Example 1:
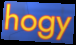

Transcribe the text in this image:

hogy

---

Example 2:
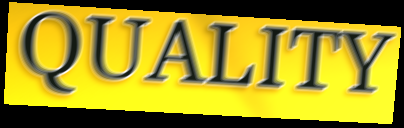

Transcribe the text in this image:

QUALITY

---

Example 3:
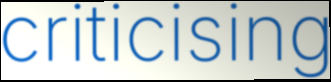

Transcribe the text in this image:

criticising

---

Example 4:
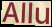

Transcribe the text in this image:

Allu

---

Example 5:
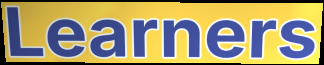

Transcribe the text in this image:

Learners